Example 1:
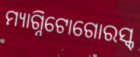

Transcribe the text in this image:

ମ୍ୟାଗ୍ନିଟୋଗୋରସ୍କ୍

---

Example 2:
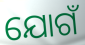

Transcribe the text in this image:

ଯୋଗଁ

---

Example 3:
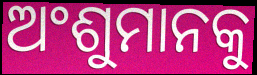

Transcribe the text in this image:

ଅଂଶୁମାନକୁ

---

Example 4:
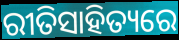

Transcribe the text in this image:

ରୀତିସାହିତ୍ୟରେ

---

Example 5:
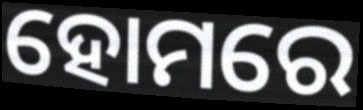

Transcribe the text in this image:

ହୋମରେ